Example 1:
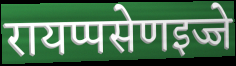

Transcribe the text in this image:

रायप्पसेणइज्जे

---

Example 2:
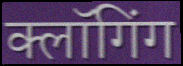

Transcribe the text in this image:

क्लॉगिंग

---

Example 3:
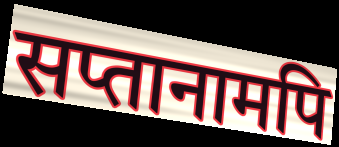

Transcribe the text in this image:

सप्तानामपि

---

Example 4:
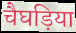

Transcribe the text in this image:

चैघड़िया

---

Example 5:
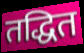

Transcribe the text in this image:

तद्धित